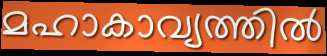
മഹാകാവ്യത്തിൽ